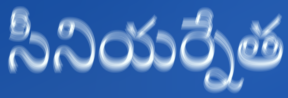
సీనియర్నేత